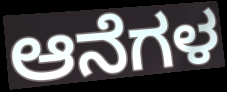
ಆನೆಗಳ